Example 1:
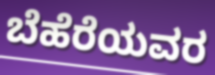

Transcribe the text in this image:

ಬೆಹೆರೆಯವರ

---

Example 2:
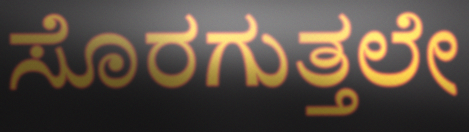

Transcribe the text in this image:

ಸೊರಗುತ್ತಲೇ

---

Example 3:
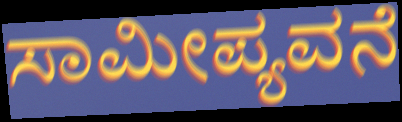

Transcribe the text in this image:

ಸಾಮೀಪ್ಯವನೆ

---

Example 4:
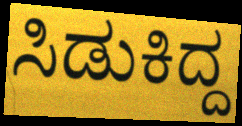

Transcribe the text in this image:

ಸಿಡುಕಿದ್ದ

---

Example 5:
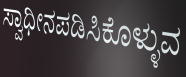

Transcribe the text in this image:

ಸ್ವಾಧೀನಪಡಿಸಿಕೊಳ್ಳುವ